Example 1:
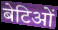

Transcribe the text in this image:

बेटिओं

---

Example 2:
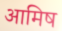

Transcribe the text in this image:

आमिष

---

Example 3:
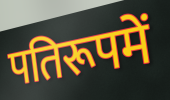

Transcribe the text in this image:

पतिरूपमें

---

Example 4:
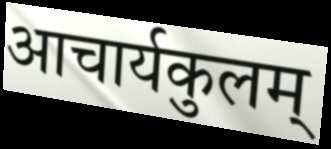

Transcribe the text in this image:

आचार्यकुलम्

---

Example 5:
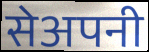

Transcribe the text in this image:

सेअपनी